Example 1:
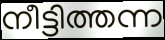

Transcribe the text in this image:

നീട്ടിത്തന്ന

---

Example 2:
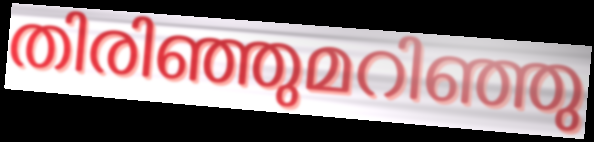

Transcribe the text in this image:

തിരിഞ്ഞുമറിഞ്ഞു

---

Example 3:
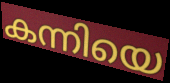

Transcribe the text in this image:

കന്നിയെ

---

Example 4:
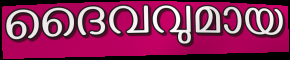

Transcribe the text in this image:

ദൈവവുമായ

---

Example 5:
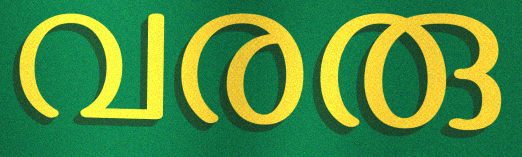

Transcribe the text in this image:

വരരു